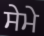
ਸੇਮੇ